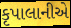
કૃપાલાનીએ